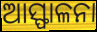
ଆସ୍ଫାଳନା